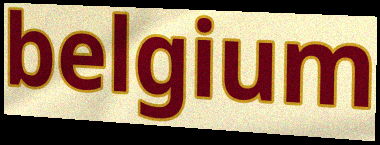
belgium